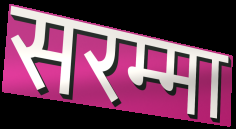
सरम्मा